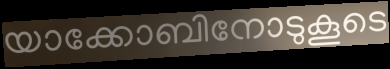
യാക്കോബിനോടുകൂടെ